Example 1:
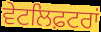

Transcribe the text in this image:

ਵੇਟਲਿਫ਼ਟਰਾਂ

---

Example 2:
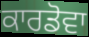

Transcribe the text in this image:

ਕਾਰਡੋਵਾ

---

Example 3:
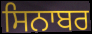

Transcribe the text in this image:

ਸਿਨਾਬਰ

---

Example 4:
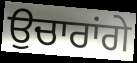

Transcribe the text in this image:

ਉਚਾਰਾਂਗੇ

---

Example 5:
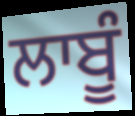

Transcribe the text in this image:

ਲਾਬੂੰ